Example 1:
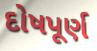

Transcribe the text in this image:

દોષપૂર્ણ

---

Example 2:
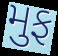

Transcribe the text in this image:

મુફ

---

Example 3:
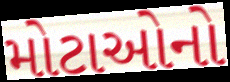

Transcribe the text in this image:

મોટાઓનો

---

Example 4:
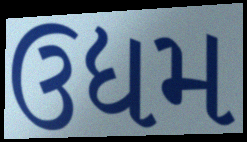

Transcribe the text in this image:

ઉદ્યમ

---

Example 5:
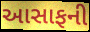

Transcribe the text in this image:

આસાફની